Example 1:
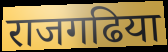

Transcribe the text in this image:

राजगढिया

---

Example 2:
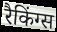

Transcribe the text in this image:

रैकिंग्स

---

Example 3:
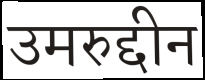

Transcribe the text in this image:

उमरुद्दीन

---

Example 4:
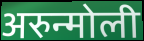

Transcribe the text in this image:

अरुन्मोली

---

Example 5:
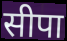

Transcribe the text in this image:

सीपा